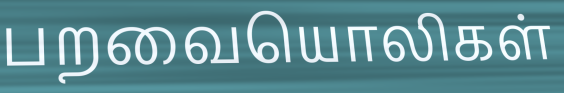
பறவையொலிகள்